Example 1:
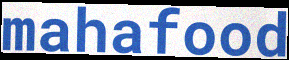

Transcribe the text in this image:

mahafood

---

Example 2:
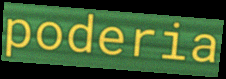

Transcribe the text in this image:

poderia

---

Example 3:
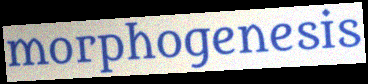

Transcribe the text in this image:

morphogenesis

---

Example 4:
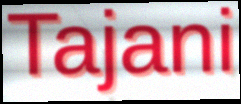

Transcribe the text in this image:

Tajani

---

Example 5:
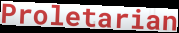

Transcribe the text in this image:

Proletarian